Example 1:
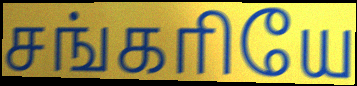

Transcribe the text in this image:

சங்கரியே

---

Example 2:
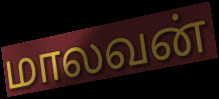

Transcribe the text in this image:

மாலவன்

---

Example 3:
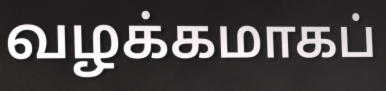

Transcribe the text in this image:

வழக்கமாகப்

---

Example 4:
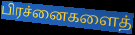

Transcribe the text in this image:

பிரச்னைகளைத்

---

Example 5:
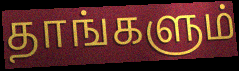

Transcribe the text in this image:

தாங்களும்